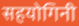
सहयोगिनी